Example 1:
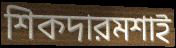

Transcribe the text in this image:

শিকদারমশাই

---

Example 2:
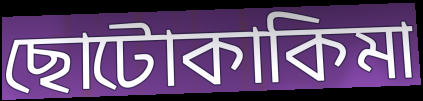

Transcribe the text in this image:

ছোটোকাকিমা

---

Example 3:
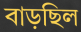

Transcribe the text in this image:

বাড়ছিল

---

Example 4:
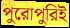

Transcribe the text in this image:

পুরোপুরিই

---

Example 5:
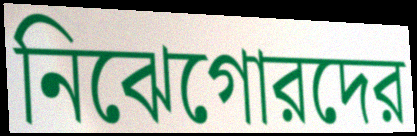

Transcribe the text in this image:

নিঝেগোরদের